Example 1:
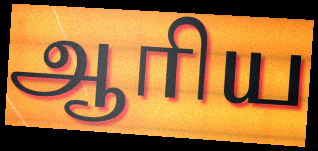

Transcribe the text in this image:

ஆரிய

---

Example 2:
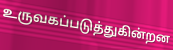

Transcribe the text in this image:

உருவகப்படுத்துகின்றன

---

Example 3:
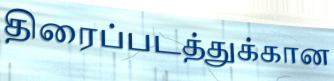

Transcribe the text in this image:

திரைப்படத்துக்கான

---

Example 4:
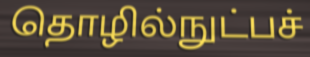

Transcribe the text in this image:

தொழில்நுட்பச்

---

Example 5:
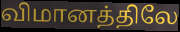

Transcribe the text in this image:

விமானத்திலே